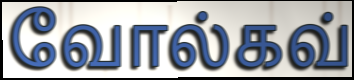
வோல்கவ்